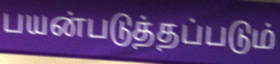
பயன்படுத்தப்படும்